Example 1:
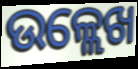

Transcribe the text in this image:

ଉଳ୍ଲେଖ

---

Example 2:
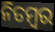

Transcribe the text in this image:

ନିତମ୍ୱର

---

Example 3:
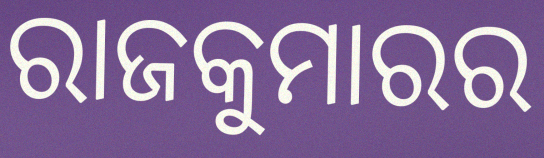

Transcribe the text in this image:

ରାଜକୁମାରର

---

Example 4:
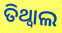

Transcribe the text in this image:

ତିଥ୍ୱାଲ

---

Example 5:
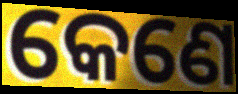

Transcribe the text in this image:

କେଣେ